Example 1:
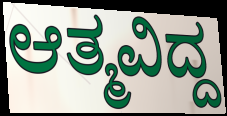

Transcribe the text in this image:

ಆತ್ಮವಿದ್ದ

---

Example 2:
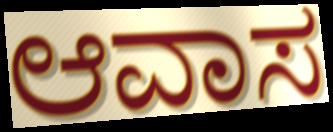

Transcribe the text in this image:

ಆವಾಸ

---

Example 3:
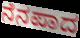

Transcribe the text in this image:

ನೆನಪಾದ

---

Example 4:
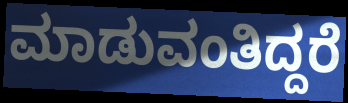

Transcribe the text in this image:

ಮಾಡುವಂತಿದ್ದರೆ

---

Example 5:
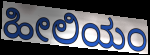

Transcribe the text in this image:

ಹೀಲಿಯಂ